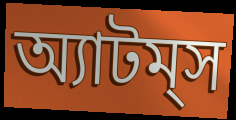
অ্যাটম্‌স